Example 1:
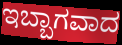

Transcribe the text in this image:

ಇಬ್ಬಾಗವಾದ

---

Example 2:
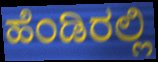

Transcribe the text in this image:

ಹೆಂಡಿರಲ್ಲಿ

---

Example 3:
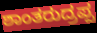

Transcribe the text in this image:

ಶಾಂತರುದ್ರಪ್ಪ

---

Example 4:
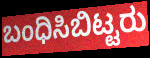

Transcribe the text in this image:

ಬಂಧಿಸಿಬಿಟ್ಟರು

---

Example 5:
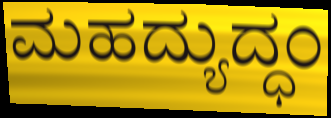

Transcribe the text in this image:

ಮಹದ್ಯುದ್ಧಂ